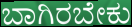
ಬಾಗಿರಬೇಕು